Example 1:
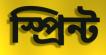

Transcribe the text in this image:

স্প্রিন্ট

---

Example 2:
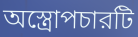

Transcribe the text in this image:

অস্ত্রোপচারটি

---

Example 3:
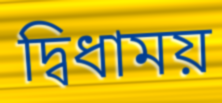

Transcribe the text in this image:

দ্বিধাময়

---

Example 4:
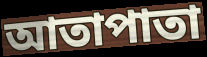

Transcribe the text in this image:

আতাপাতা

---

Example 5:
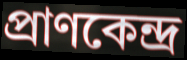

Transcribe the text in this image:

প্রাণকেন্দ্র